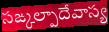
సఙ్కల్పాదేవాస్య